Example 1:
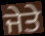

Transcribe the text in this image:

ਜੇਤੇ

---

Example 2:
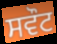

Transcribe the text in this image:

ਸਵੌਟ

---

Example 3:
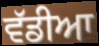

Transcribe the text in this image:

ਵੱਡੀਆ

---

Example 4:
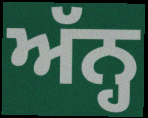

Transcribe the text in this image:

ਅੱਨ੍ਹ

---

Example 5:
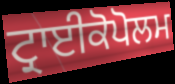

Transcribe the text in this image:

ਟ੍ਰਾਈਕੋਪੋਲਮ